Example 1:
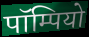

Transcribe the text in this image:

पॉम्पियो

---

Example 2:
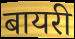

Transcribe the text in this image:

बायरी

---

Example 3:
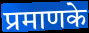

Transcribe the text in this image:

प्रमाणके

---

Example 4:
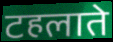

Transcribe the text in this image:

टहलाते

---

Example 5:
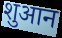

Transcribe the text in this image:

शुआन